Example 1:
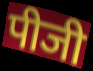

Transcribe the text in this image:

पीजी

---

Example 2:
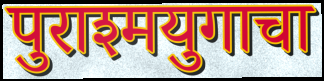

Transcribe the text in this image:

पुराश्मयुगाचा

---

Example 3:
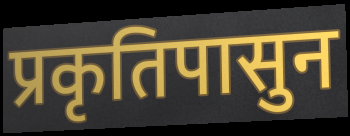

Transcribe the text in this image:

प्रकृतिपासुन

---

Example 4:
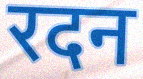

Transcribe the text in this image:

रदन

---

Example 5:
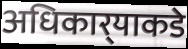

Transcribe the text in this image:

अधिकार्‍याकडे